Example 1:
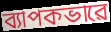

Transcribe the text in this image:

ব্যাপকভাৱে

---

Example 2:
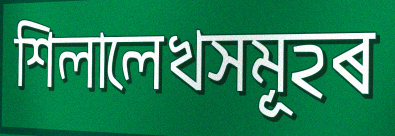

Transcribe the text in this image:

শিলালেখসমূহৰ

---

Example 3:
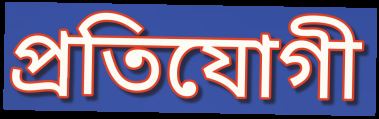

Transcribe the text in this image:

প্ৰতিযোগী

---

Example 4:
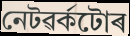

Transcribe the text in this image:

নেটৱৰ্কটোৰ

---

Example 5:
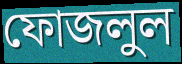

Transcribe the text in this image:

ফোজলুল